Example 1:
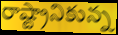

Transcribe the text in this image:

రాష్ట్రానికున్న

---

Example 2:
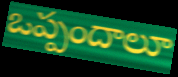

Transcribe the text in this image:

ఒప్పందాలూ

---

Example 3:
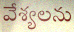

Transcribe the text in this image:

వేశ్యలను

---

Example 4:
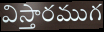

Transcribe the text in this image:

విస్తారముగ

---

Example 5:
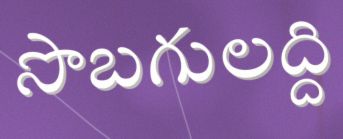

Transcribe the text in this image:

సొబగులద్ది